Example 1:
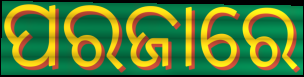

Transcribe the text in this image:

ପରଜାରେ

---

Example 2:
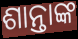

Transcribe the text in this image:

ଶାନ୍ତାଙ୍କ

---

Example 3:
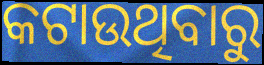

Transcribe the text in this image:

କଟାଉଥିବାରୁ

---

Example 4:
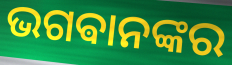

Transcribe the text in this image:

ଭଗଵାନଙ୍କର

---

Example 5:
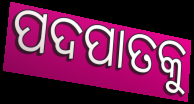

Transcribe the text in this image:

ପଦପାତକୁ